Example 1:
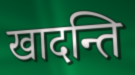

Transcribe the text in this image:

खादन्ति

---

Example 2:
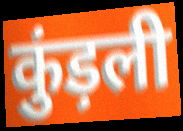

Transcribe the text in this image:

कुंड़ली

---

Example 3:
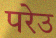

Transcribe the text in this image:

परेउ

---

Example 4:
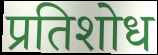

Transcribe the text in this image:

प्रतिशोध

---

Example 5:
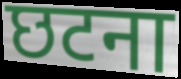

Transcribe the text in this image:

छटना